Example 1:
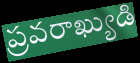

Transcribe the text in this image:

ప్రవరాఖ్యుడి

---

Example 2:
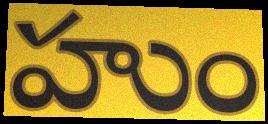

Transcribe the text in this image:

హుం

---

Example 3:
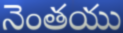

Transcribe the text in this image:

నెంతయు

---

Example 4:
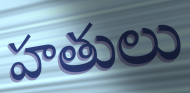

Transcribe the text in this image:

హతులు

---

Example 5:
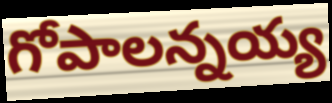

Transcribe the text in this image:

గోపాలన్నయ్య